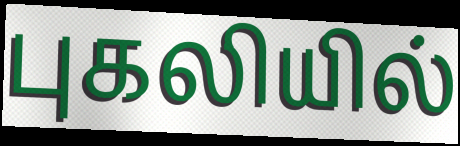
புகலியில்